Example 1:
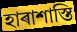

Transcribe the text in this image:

হাৰাশাস্তি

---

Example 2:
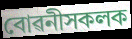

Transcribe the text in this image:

বোৱনীসকলক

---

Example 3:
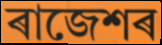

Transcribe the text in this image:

ৰাজেশৰ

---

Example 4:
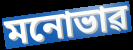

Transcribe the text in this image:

মনোভাৱ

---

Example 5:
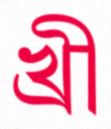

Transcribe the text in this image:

খ্ৰী